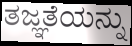
ತಜ್ಞತೆಯನ್ನು